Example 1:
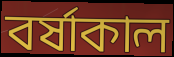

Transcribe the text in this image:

বর্ষাকাল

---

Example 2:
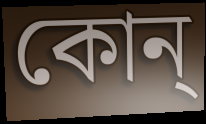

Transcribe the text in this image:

কোন্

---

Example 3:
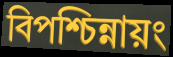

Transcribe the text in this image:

বিপশ্চিন্নায়ং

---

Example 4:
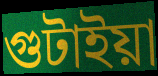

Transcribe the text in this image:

গুটাইয়া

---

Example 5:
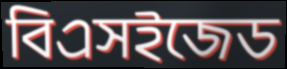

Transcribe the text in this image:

বিএসইজেড